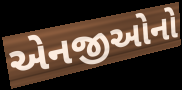
એનજીઓનો